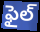
ఫైల్